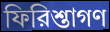
ফিরিশ্তাগণ